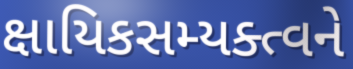
ક્ષાયિકસમ્યક્ત્વને